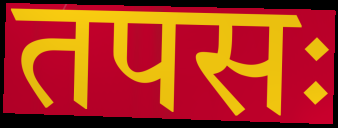
तपसः